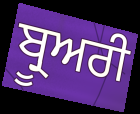
ਬ੍ਰੂਅਰੀ